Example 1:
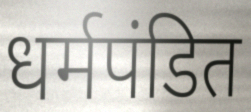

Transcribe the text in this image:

धर्मपंडित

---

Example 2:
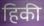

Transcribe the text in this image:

हिकी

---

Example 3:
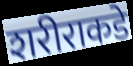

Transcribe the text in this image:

शरीराकडे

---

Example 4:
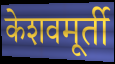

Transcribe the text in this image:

केशवमूर्ती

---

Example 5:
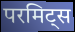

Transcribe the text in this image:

परमिट्स